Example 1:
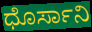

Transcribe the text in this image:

ಧೊರ್ಸಾನಿ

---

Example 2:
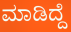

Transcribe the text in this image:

ಮಾಡಿದ್ದೆ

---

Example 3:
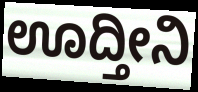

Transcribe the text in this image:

ಊದ್ತೀನಿ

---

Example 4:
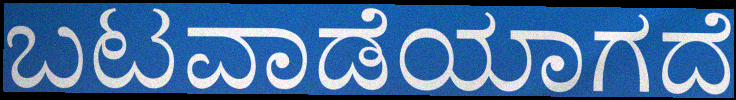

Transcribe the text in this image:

ಬಟವಾಡೆಯಾಗದೆ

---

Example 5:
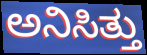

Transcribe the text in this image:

ಅನಿಸಿತ್ತು